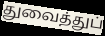
துவைத்துப்